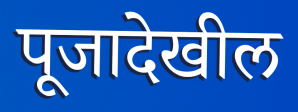
पूजादेखील